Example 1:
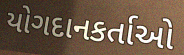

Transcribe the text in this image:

યોગદાનકર્તાઓ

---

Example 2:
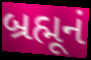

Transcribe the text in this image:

બ્રહ્મૂનં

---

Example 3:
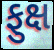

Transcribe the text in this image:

ફુક્ષ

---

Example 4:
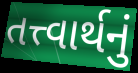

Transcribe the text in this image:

તત્ત્વાર્થનું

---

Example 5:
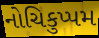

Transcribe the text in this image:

નોચિકુપ્પમ